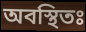
অবস্থিতঃ